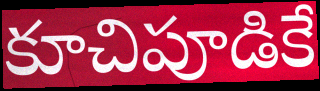
కూచిపూడికే